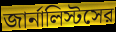
জার্নালিস্টসের